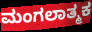
ಮಂಗಲಾತ್ಮಕ